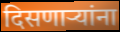
दिसणाऱ्यांना